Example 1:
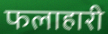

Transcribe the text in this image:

फलाहारी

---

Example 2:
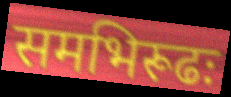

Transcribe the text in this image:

समभिरूढः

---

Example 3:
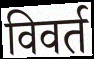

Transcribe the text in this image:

विवर्त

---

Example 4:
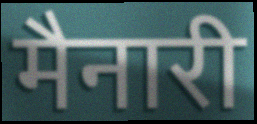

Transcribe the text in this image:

मैनारी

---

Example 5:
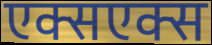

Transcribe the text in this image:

एक्सएक्स